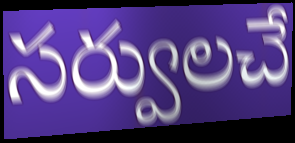
సర్వులచే